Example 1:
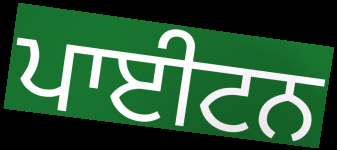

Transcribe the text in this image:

ਪਾਈਟਨ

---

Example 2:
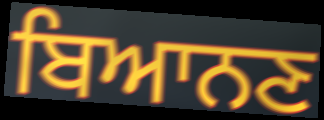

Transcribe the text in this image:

ਬਿਆਨਣ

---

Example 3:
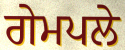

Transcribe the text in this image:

ਗੇਮਪਲੇ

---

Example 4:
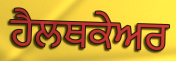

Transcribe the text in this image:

ਹੈਲਥਕੇਅਰ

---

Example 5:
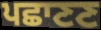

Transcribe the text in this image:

ਪਛਾਣਣ